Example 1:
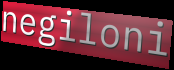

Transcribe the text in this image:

negiloni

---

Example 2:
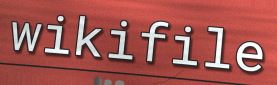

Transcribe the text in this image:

wikifile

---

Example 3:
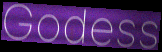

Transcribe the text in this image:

Godess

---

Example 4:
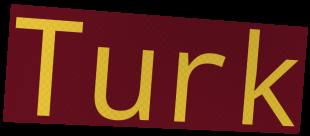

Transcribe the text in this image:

Turk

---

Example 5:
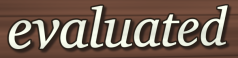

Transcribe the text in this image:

evaluated